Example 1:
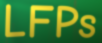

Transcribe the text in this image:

LFPs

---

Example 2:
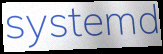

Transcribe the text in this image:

systemd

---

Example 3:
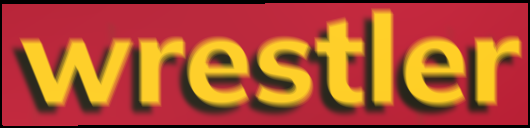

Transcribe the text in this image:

wrestler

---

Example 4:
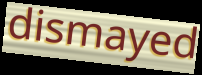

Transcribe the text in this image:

dismayed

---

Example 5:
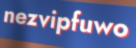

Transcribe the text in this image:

nezvipfuwo